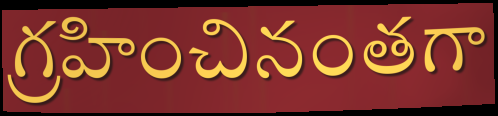
గ్రహించినంతగా